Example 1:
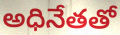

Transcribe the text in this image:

అధినేతతో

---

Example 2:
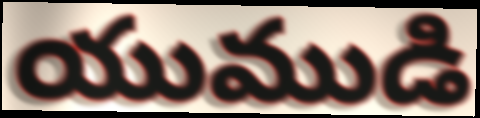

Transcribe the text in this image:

యుముడి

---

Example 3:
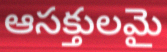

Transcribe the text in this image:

ఆసక్తులమై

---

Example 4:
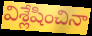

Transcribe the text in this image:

విశ్లేషించినా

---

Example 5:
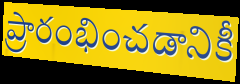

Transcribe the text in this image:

ప్రారంభించడానికీ